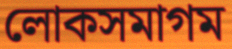
লোকসমাগম